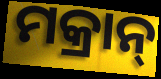
ମକ୍ରାନ୍